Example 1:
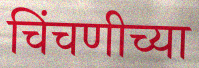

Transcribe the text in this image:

चिंचणीच्या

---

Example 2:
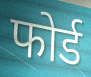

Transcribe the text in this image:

फोर्ड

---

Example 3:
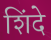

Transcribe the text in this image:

शिंदे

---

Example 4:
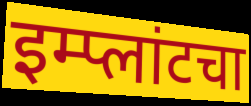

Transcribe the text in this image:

इम्प्लांटचा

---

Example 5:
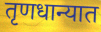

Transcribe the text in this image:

तृणधान्यात